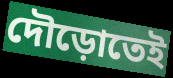
দৌড়োতেই